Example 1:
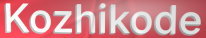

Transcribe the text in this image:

Kozhikode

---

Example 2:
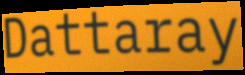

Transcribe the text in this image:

Dattaray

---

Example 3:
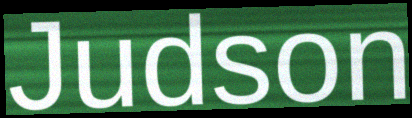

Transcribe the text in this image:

Judson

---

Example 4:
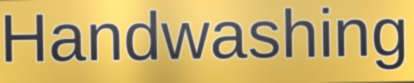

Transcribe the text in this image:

Handwashing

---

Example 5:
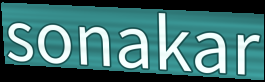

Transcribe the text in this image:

sonakar